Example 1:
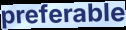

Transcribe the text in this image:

preferable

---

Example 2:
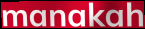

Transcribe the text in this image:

manakah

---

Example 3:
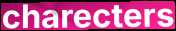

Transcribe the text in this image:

charecters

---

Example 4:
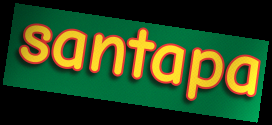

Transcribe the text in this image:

santapa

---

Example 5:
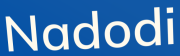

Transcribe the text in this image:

Nadodi